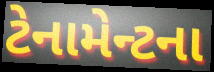
ટેનામેન્ટના